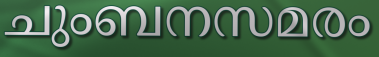
ചുംബനസമരം